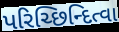
પરિચ્છિન્દિત્વા